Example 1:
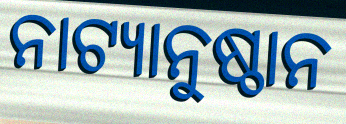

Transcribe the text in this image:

ନାଟ୍ୟାନୁଷ୍ଠାନ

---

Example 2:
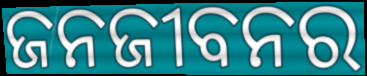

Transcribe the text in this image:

ଜନଜୀବନର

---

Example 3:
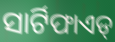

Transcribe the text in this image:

ସାର୍ଟିଫାଏଡ୍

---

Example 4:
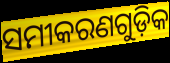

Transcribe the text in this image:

ସମୀକରଣଗୁଡ଼ିକ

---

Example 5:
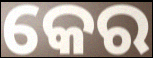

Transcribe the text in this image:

କେର